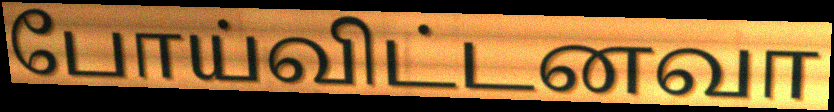
போய்விட்டனவா